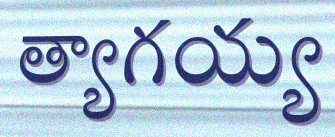
త్యాగయ్య